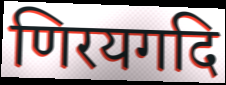
णिरयगदि